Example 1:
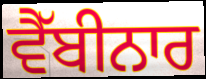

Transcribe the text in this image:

ਵੈੱਬੀਨਾਰ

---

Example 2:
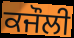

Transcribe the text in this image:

ਕਜੌਲੀ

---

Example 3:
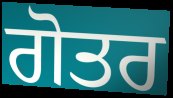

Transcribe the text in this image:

ਗੋਤਰ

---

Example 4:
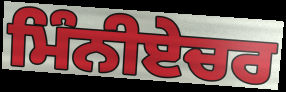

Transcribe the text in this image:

ਮਿੰਨੀਏਚਰ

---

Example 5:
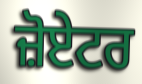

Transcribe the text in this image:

ਜ਼ੋਏਟਰ